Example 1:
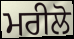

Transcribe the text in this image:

ਮਰੀਲੋ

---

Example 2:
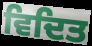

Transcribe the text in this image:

ਵਿਦਿਤ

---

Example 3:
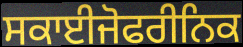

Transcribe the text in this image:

ਸਕਾਈਜੋਫਰੀਨਿਕ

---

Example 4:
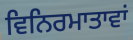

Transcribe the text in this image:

ਵਿਨਿਰਮਾਤਾਵਾਂ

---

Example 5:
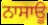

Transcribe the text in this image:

ਨਾਸਾਊ